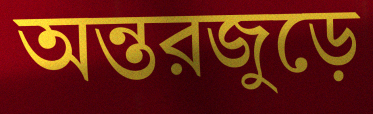
অন্তরজুড়ে